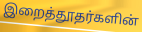
இறைத்தூதர்களின்